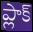
ప్లాక్